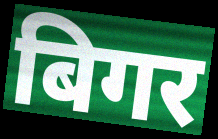
बिगर